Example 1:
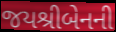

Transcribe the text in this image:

જયશ્રીબેનની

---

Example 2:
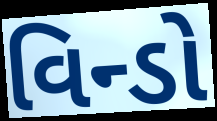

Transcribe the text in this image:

વિન્ડો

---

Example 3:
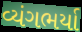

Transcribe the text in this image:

વ્યંગભર્યા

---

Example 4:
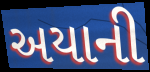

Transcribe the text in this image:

અયાની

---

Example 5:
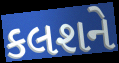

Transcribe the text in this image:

કલશને